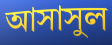
আসাসুল